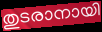
തുടരാനായി